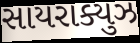
સાયરાક્યુઝ